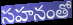
సహనంతో